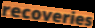
recoveries